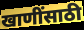
खाणींसाठी